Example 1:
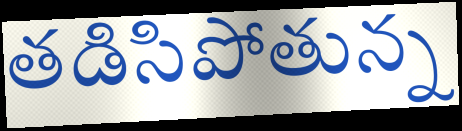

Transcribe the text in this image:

తడిసిపోతున్న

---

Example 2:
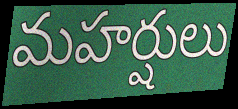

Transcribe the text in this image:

మహర్షులు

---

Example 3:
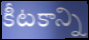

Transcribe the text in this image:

కీటకాన్ని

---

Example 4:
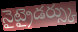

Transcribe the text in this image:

నైట్రైడర్స్కు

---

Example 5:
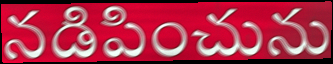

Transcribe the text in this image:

నడిపించును